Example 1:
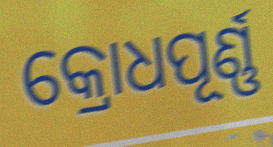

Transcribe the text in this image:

କ୍ରୋଧପୂର୍ଣ୍ଣ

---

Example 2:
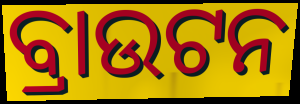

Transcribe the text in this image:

ବ୍ରାଉଟନ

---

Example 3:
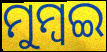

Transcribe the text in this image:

ମୁମ୍ୱଇ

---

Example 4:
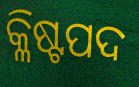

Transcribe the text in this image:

କ୍ଳିଷ୍ଟପଦ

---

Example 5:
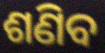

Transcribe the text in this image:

ଶଣିବ